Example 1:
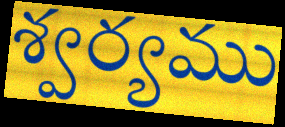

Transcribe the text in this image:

శ్వర్యము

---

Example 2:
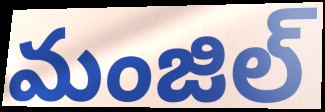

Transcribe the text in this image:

మంజిల్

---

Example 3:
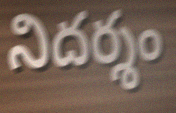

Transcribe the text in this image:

నిదర్శం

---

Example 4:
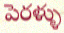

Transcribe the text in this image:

పెరళ్ళు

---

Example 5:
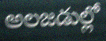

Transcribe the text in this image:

అలజడుల్లో